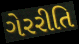
ગેરરીતિ